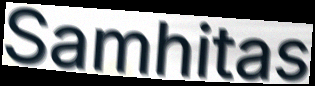
Samhitas